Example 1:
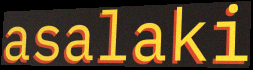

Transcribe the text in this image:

asalaki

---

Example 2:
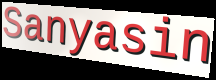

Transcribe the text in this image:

Sanyasin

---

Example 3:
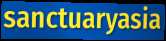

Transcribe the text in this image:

sanctuaryasia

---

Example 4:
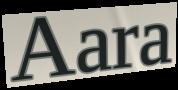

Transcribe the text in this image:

Aara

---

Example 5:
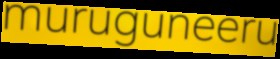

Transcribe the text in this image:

muruguneeru